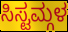
ಸಿಸ್ಟಮ್ಗಳ